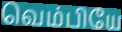
வெம்பியே